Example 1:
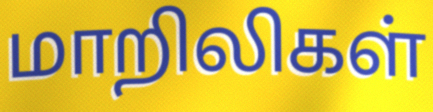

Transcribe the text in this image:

மாறிலிகள்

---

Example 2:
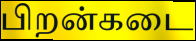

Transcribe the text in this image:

பிறன்கடை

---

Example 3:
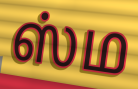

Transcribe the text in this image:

ஸ்ம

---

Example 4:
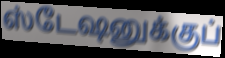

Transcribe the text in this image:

ஸ்டேஷனுக்குப்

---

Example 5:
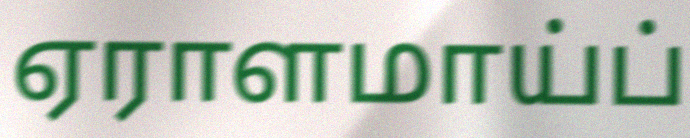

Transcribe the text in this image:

ஏராளமாய்ப்